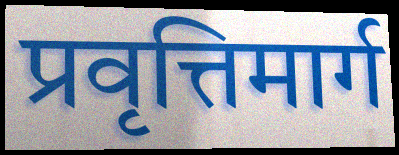
प्रवृत्तिमार्ग